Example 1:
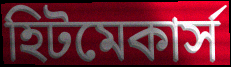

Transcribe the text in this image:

হিটমেকার্স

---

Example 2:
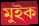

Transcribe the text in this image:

মুইক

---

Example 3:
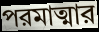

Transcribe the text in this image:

পরমাত্মার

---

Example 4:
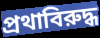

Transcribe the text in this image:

প্রথাবিরুদ্ধ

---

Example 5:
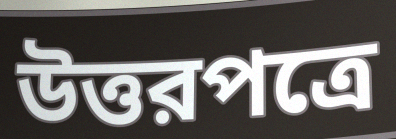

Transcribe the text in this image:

উত্তরপত্রে